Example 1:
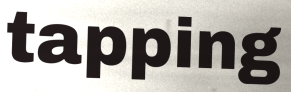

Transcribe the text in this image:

tapping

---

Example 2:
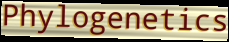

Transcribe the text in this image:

Phylogenetics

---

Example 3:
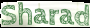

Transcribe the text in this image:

Sharad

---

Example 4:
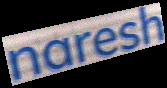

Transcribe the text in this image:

naresh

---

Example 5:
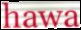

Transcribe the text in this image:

hawa